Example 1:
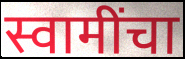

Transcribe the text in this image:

स्वामींचा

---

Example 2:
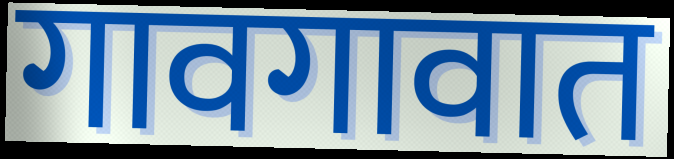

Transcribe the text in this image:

गावगावात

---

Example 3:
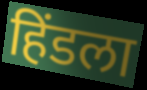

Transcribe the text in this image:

हिंडला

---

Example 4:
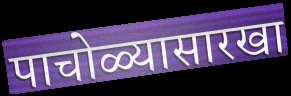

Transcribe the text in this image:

पाचोळ्यासारखा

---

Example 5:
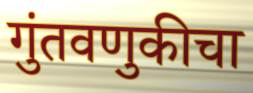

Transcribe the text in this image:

गुंतवणुकीचा